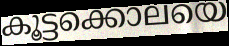
കൂട്ടക്കൊലയെ